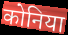
कोनिया